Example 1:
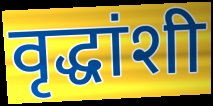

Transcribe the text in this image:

वृद्धांशी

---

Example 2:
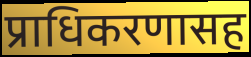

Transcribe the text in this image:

प्राधिकरणासह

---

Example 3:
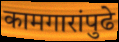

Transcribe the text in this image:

कामगारांपुढे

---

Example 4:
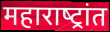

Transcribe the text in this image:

महाराष्ट्रांत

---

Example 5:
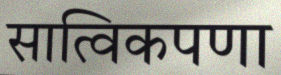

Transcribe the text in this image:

सात्विकपणा